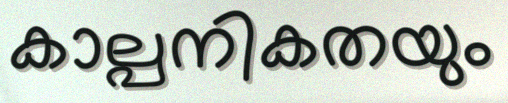
കാല്പനികതയും